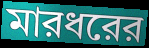
মারধরের